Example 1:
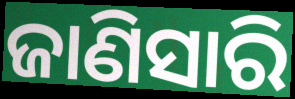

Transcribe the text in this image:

ଜାଣିସାରି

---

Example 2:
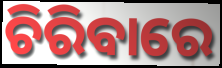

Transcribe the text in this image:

ଚିରିବାରେ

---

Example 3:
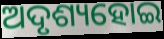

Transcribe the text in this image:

ଅଦୃଶ୍ୟହୋଇ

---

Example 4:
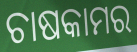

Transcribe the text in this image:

ଚାଷକାମର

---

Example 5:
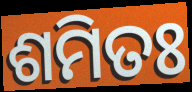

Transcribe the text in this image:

ଶମିତଃ